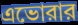
এভোরার